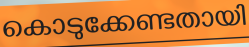
കൊടുക്കേണ്ടതായി